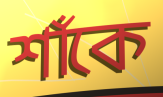
শাঁকে